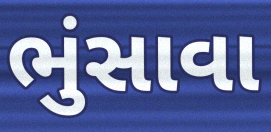
ભુંસાવા